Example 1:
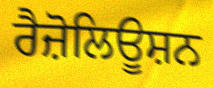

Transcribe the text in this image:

ਰੈਜ਼ੋਲਿਊਸ਼ਨ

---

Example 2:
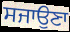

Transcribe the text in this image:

ਸਜਾਉਣਾ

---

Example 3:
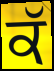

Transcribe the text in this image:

ਕੱ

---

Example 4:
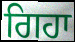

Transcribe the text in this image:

ਗਿਹਾ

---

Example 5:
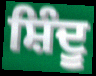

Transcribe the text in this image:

ਸ਼ਿੰਦੂ